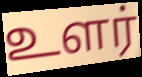
உளர்